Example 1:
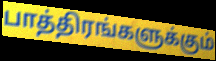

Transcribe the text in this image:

பாத்திரங்களுக்கும்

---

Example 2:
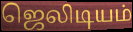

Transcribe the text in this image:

ஜெலிடியம்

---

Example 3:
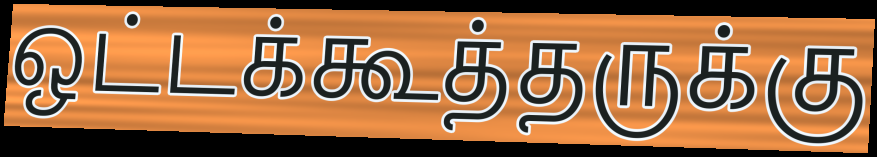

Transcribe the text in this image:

ஒட்டக்கூத்தருக்கு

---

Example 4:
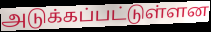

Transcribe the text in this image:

அடுக்கப்பட்டுள்ளன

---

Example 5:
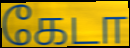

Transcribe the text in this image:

கேடா